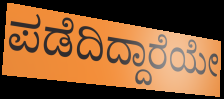
ಪಡೆದಿದ್ದಾರೆಯೇ